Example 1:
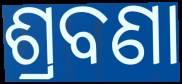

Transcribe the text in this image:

ଶ୍ରବଣା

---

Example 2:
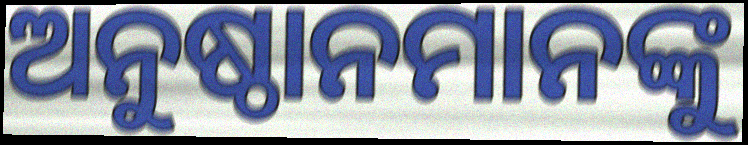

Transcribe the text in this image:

ଅନୁଷ୍ଠାନମାନଙ୍କୁ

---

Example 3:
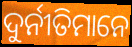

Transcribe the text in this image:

ଦୁର୍ନୀତିମାନେ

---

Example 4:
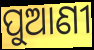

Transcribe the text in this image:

ପୁଆଣୀ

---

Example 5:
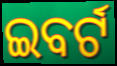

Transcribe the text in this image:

ଇବର୍ଟ